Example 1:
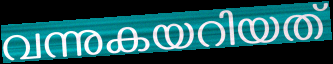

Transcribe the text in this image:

വന്നുകയറിയത്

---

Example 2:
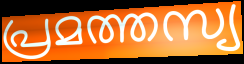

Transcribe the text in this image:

പ്രമത്തസ്യ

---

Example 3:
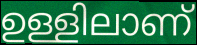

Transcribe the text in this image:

ഉള്ളിലാണ്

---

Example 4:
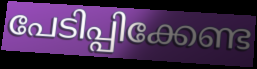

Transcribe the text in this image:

പേടിപ്പിക്കേണ്ട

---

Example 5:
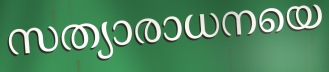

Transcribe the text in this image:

സത്യാരാധനയെ